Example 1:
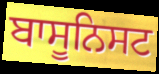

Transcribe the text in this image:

ਬਾਸੂਨਿਸਟ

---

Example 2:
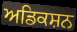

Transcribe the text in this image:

ਅਡਿਕਸ਼ਨ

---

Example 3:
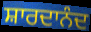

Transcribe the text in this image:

ਸ਼ਾਰਦਾਨੰਦ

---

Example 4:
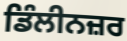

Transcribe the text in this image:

ਡਿੰਲੀਨਜ਼ਰ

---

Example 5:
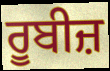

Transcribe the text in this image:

ਰੂਬੀਜ਼